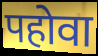
पहोवा